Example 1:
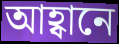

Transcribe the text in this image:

আহ্বানে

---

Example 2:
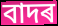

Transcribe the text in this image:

বাদৰ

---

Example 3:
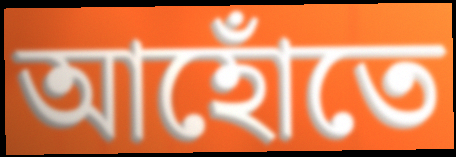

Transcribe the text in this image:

আহোঁতে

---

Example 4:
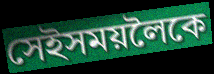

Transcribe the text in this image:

সেইসময়লৈকে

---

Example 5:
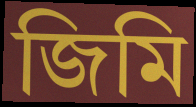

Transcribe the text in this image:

জিমি